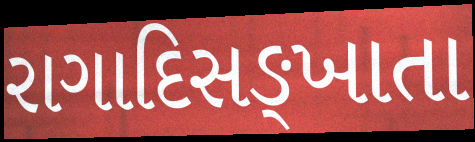
રાગાદિસઙ્ખાતા